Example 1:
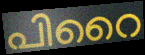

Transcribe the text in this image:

പിറൈ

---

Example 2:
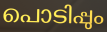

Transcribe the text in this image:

പൊടിപ്പും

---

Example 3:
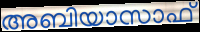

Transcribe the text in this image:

അബിയാസാഫ്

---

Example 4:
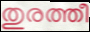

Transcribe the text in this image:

തുരത്തീ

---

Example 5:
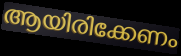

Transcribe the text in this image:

ആയിരിക്കേണം